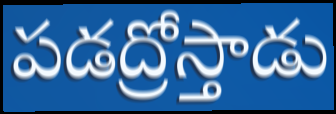
పడద్రోస్తాడు